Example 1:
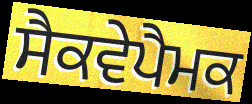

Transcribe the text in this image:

ਸੈਕਵੇਪੈਮਕ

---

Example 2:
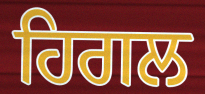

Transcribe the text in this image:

ਹਿਗਲ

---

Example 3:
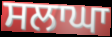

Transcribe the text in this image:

ਸਲਾਘਾ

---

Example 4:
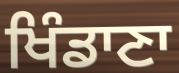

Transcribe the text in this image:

ਖਿੰਡਾਣਾ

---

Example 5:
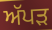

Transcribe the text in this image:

ਅੱਪੜ